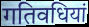
गतिवधियां